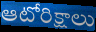
ఆటోరిక్షాలు